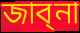
জাব্‌না